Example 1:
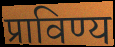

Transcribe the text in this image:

प्राविण्य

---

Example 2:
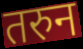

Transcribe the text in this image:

तरुन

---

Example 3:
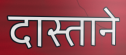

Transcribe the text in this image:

दास्ताने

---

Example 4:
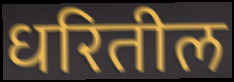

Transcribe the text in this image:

धरितील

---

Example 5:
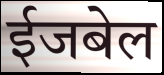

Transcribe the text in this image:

ईजबेल